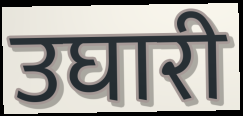
उघारी